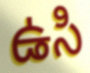
ఉసి